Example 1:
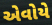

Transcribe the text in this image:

એવોયે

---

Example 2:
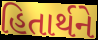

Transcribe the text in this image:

હિતાર્થને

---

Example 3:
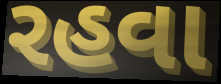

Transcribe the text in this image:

રહવા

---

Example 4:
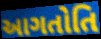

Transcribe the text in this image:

આગતોતિ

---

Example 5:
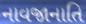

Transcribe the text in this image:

નાવજાનાતિ